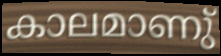
കാലമാണു്